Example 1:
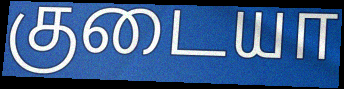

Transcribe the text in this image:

குடையா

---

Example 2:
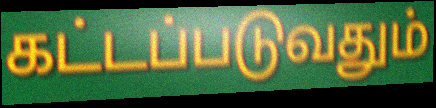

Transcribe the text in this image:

கட்டப்படுவதும்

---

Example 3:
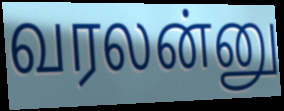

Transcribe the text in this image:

வரலன்னு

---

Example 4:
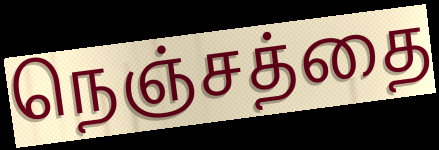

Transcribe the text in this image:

நெஞ்சத்தை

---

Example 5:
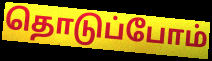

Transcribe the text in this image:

தொடுப்போம்